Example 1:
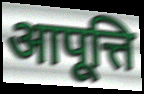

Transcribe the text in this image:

आपूत्ति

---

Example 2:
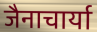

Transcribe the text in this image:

जैनाचार्या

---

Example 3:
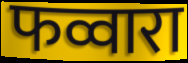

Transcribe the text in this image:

फव्वारा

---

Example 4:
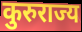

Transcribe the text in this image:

कुरुराज्य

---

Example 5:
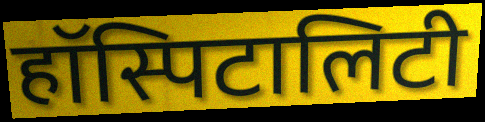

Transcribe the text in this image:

हॉस्पिटालिटी